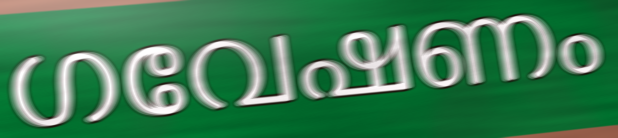
ഗവേഷണം